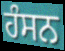
ਹੰਸਨ